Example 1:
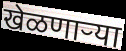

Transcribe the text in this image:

खेळणाऱ्या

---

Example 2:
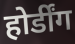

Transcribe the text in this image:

होर्डींग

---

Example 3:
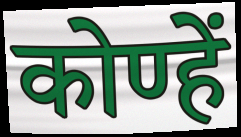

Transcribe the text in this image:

कोण्हें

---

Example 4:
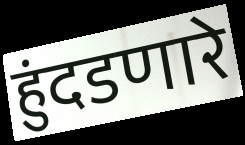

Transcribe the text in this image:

हुंदडणारे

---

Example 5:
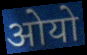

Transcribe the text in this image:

ओयो